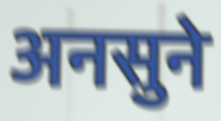
अनसुने